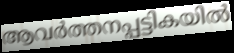
ആവർത്തനപ്പട്ടികയിൽ